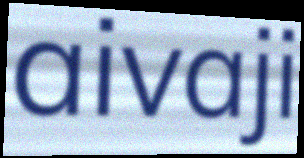
aivaji